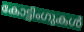
കോട്ടിംഗുകൾ